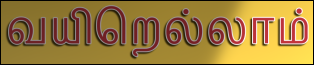
வயிறெல்லாம்